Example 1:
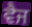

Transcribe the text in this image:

ਵੈਜ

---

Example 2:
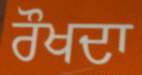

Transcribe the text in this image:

ਰੌਖਦਾ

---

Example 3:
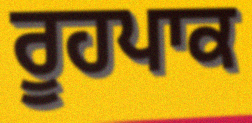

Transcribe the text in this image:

ਰੂਹਪਾਕ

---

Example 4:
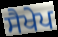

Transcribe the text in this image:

ਸੈਖੇਪ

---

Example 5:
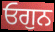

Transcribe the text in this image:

ਓਗੁਨ